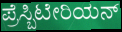
ಪ್ರೆಸ್ಬಿಟೇರಿಯನ್